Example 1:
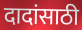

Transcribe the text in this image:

दादांसाठी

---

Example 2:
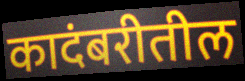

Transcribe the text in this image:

कादंबरीतील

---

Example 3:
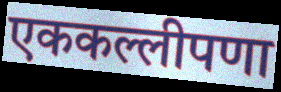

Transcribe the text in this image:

एककल्लीपणा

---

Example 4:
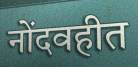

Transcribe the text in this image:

नोंदवहीत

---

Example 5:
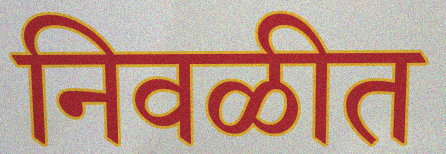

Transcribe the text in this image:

निवळीत